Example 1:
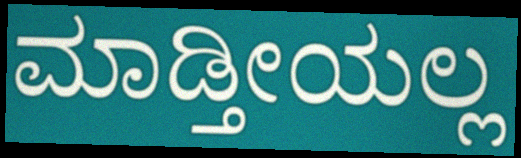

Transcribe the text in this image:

ಮಾಡ್ತೀಯಲ್ಲ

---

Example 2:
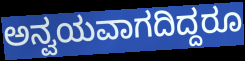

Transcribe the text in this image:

ಅನ್ವಯವಾಗದಿದ್ದರೂ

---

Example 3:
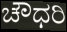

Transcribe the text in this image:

ಚೌಧರಿ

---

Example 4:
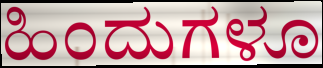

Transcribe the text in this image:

ಹಿಂದುಗಳೂ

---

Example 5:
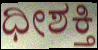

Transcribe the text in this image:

ಧೀಶಕ್ತಿ